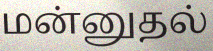
மன்னுதல்